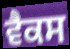
ਵੈਕਸ